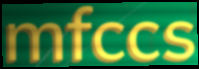
mfccs